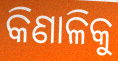
କିଣାଳିକୁ